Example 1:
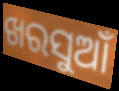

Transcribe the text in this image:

ଖରସୁଆଁ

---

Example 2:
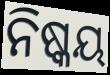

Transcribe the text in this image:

ନିଷ୍କୟ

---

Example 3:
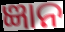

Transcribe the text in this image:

ଜ୍ଞାନ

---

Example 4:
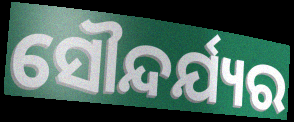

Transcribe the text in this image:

ସୌନ୍ଦର୍ଯ୍ୟର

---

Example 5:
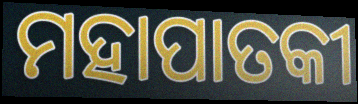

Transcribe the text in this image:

ମହାପାତକୀ